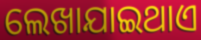
ଲେଖାଯାଇଥାଏ